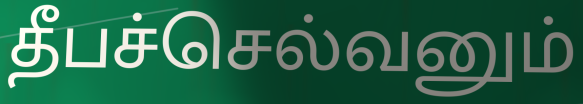
தீபச்செல்வனும்